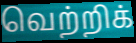
வெற்றிக்